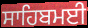
ਸਾਹਿਬਮਈ